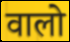
वालो